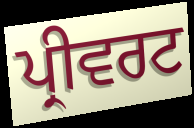
ਪ੍ਰੀਵਰਟ